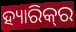
ହ୍ୟାରିକ୍‌ର